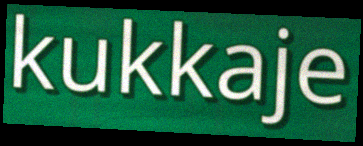
kukkaje